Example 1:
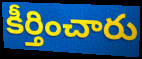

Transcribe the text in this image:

కీర్తించారు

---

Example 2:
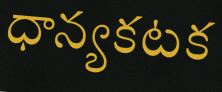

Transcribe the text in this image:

ధాన్యకటక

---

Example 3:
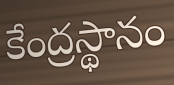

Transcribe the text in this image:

కేంద్రస్థానం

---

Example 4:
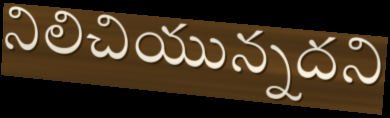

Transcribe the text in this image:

నిలిచియున్నదని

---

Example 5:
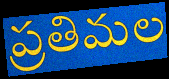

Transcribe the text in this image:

ప్రతిమల